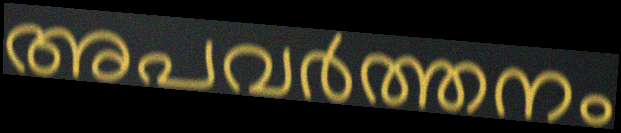
അപവർത്തനം